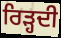
ਰਿੜ੍ਹਦੀ